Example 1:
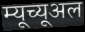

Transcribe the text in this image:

म्यूच्यूअल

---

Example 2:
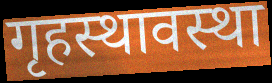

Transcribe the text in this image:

गृहस्थावस्था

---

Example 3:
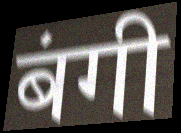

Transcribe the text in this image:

बंगी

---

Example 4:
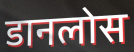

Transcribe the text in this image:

डानलोस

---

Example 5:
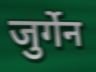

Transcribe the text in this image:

जुर्गेन